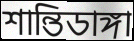
শান্তিডাঙ্গা